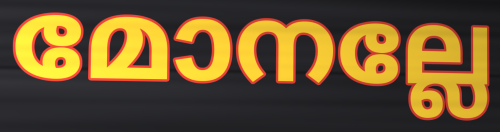
മോനല്ലേ